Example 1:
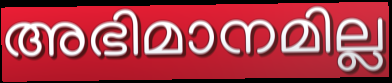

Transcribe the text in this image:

അഭിമാനമില്ല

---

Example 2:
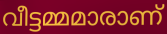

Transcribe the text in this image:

വീട്ടമ്മമാരാണ്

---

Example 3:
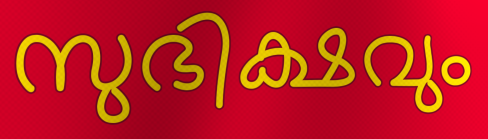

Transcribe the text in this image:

സുഭിക്ഷവും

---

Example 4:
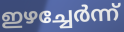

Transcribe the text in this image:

ഇഴച്ചേർന്ന്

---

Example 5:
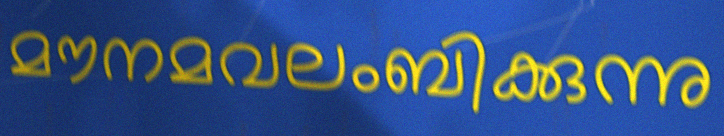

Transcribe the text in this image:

മൗനമവലംബിക്കുന്നു